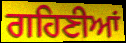
ਗਹਿਣੀਆਂ